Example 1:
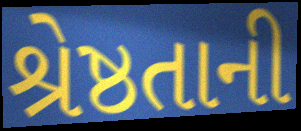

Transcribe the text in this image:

શ્રેષ્ઠતાની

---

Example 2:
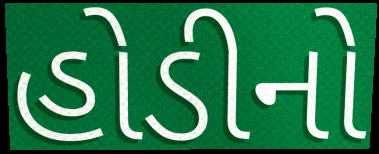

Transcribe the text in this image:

હોડીનો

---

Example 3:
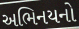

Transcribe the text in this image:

અભિનયનો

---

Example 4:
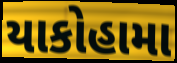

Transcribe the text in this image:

યાકોહામા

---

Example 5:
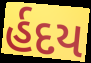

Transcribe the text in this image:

ર્હદય